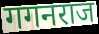
गगनराज